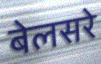
बेलसरे